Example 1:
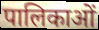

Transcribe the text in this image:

पालिकाओं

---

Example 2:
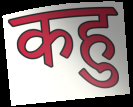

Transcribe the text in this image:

कहु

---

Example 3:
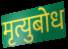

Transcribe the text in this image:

मृत्युबोध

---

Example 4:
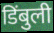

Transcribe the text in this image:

डिंबुली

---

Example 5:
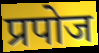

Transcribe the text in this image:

प्रपोज